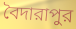
বৈদারাপুর